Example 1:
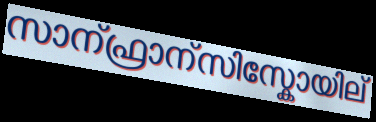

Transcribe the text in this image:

സാന്ഫ്രാന്സിസ്കോയില്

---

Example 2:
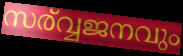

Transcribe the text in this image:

സര്വ്വജനവും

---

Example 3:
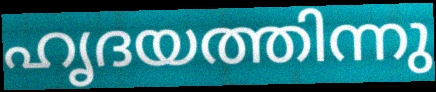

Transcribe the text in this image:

ഹൃദയത്തിന്നു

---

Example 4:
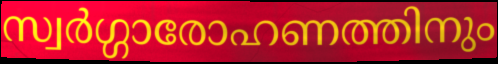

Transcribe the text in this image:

സ്വർഗ്ഗാരോഹണത്തിനും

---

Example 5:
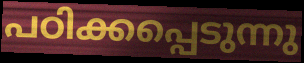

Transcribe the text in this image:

പഠിക്കപ്പെടുന്നു